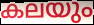
കലയും